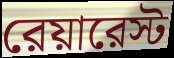
রেয়ারেস্ট